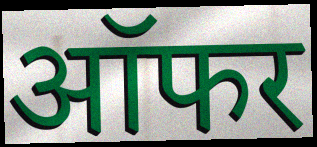
ऑफर